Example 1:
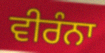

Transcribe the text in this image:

ਵੀਰੰਨਾ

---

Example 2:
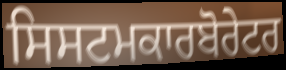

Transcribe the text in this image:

ਸਿਸਟਮਕਾਰਬੋਰੇਟਰ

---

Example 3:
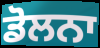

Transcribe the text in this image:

ਡੋਲਨਾ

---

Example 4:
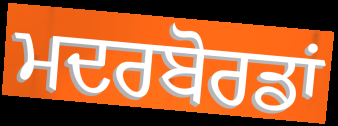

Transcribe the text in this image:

ਮਦਰਬੋਰਡਾਂ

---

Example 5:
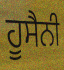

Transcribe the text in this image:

ਹੂਸੈਨੀ